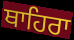
ਥਾਹਿਰਾ